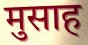
मुसाह